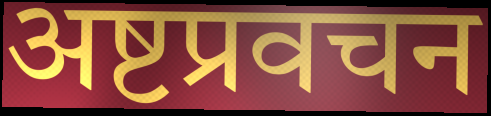
अष्टप्रवचन